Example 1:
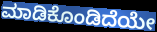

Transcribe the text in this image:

ಮಾಡಿಕೊಂಡಿದೆಯೇ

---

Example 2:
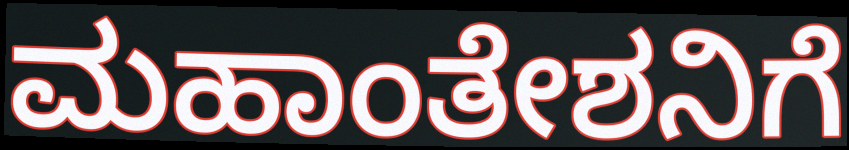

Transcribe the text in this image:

ಮಹಾಂತೇಶನಿಗೆ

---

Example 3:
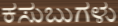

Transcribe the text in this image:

ಕಸುಬುಗಳು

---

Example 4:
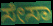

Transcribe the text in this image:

ಸೇಸಾ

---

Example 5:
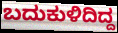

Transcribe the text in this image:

ಬದುಕುಳಿದಿದ್ದ